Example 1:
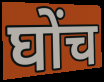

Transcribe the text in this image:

घोंच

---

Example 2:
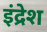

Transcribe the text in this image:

इंद्रेश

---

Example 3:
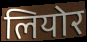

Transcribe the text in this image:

लियोर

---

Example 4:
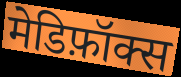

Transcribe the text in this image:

मेडिफ़ॉक्स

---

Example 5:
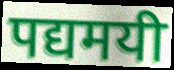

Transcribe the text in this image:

पद्यमयी